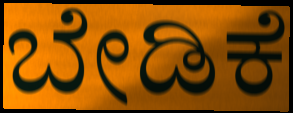
ಬೇಡಿಕೆ